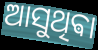
ଆସୁଥିଵା